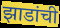
झाडांची